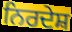
ਨਿਰਦੇਸ਼